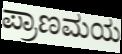
ಪ್ರಾಣಮಯ